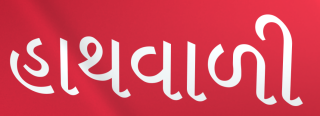
હાથવાળી